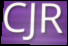
CJR